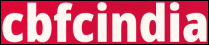
cbfcindia